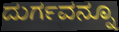
ದುರ್ಗವನ್ನೂ